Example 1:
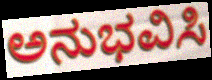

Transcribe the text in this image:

ಅನುಭವಿಸಿ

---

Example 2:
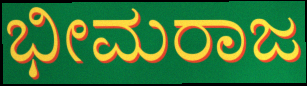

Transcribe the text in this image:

ಭೀಮರಾಜ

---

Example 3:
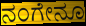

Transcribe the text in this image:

ನಂಗೇನೂ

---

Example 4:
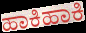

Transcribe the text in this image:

ಹಾಕಿಹಾಕಿ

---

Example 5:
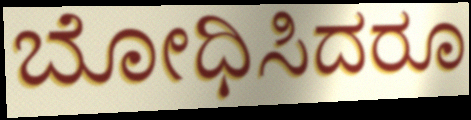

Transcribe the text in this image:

ಬೋಧಿಸಿದರೂ